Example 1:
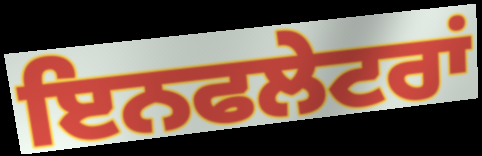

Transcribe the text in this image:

ਇਨਫਲੇਟਰਾਂ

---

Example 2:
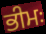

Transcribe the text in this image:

ਭੀਮਃ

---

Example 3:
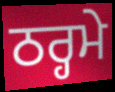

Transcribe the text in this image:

ਠਰ੍ਹਮੇ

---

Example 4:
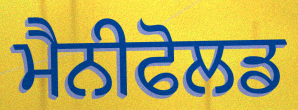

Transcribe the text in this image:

ਮੈਨੀਫੋਲਡ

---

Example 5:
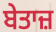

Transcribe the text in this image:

ਬੇਤਾਜ਼